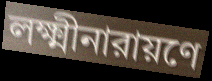
লক্ষ্মীনারায়ণে